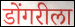
डोंगरीला